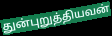
துன்புறுத்தியவன்